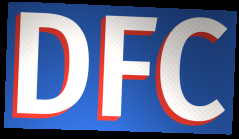
DFC